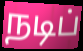
நடிப்